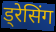
ड्रेसिंग